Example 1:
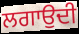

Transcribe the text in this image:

ਲਗਾਉਦੀ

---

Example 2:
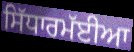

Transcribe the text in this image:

ਸਿੱਧਾਰਮੱਈਆ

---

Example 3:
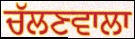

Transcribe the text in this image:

ਚੱਲਣਵਾਲਾ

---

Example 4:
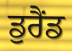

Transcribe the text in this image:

ਡੁਰੈਂਡ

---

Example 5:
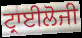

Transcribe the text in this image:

ਟ੍ਰਾਈਲੋਜੀ